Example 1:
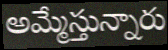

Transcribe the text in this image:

అమ్మేస్తున్నారు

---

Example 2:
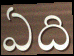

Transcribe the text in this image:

ఏది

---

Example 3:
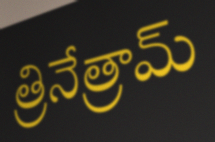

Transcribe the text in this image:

త్రినేత్రామ్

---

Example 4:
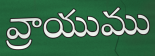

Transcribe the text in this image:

వ్రాయుము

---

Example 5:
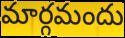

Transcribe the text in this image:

మార్గమందు